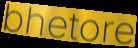
bhetore